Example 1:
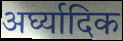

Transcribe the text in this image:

अर्घ्यादिक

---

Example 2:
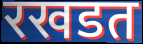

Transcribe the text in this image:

रखडत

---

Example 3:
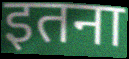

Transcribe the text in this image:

इतना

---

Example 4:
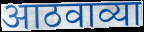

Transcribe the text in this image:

आठवाव्या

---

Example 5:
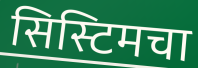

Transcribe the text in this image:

सिस्टिमचा